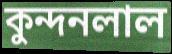
কুন্দনলাল